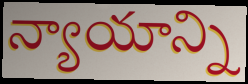
న్యాయాన్ని